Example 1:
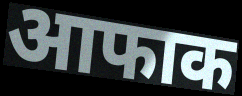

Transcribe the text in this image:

आफाक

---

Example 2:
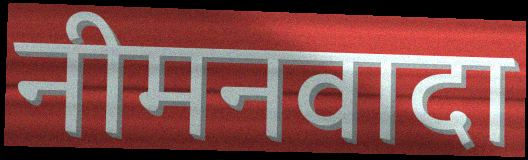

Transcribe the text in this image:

नीमनवादा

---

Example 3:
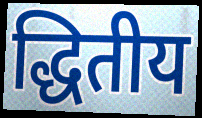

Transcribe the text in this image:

द्धितीय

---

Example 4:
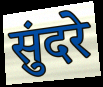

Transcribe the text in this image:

सुंदरे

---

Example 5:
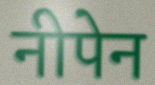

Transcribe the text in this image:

नीपेन